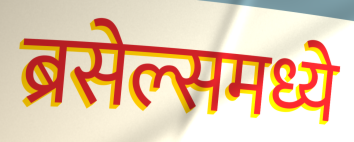
ब्रसेल्समध्ये